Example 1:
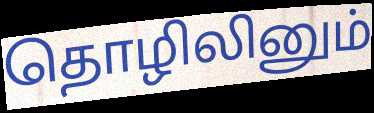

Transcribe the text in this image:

தொழிலினும்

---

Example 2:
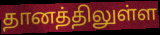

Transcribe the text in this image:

தானத்திலுள்ள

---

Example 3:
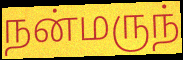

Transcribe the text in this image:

நன்மருந்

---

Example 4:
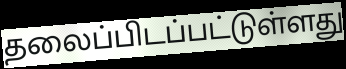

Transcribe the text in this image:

தலைப்பிடப்பட்டுள்ளது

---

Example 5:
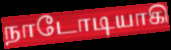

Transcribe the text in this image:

நாடோடியாகி